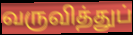
வருவித்துப்